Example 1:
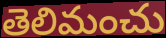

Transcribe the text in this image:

తెలిమంచు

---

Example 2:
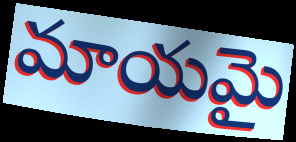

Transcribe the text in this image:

మాయమై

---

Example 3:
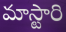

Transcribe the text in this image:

మాస్టారి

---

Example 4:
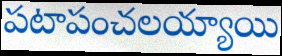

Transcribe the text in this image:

పటాపంచలయ్యాయి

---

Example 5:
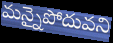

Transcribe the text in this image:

మన్నైపోదువని